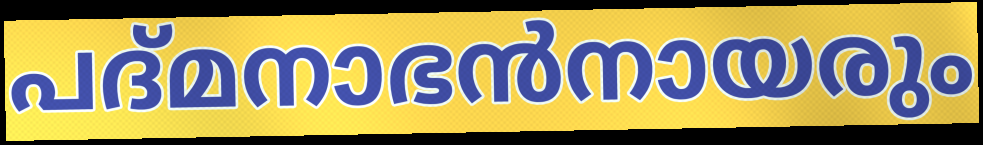
പദ്മനാഭൻനായരും